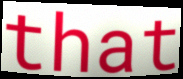
that